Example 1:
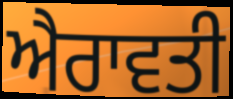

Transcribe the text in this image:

ਐਰਾਵਤੀ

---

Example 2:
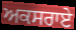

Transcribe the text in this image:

ਅਕਸਰਾਏ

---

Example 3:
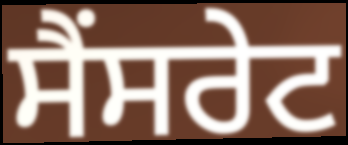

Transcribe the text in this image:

ਸੈਂਸਰੇਟ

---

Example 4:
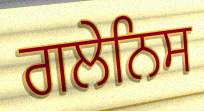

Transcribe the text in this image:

ਗਲੇਨਿਸ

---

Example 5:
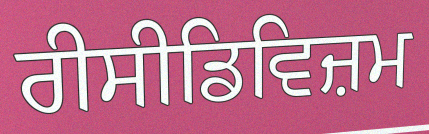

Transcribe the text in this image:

ਰੀਸੀਡਿਵਿਜ਼ਮ